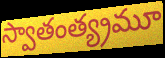
స్వాతంత్య్రమూ